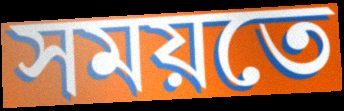
সময়তে